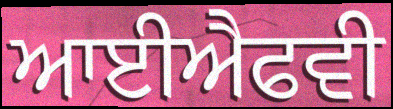
ਆਈਐਫਵੀ